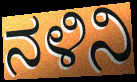
ನಳಿನಿ